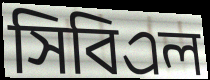
সিবিএল